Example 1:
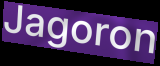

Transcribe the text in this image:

Jagoron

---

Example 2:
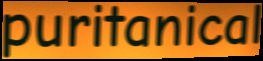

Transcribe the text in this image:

puritanical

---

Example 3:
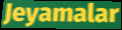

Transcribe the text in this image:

Jeyamalar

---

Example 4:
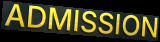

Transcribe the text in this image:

ADMISSION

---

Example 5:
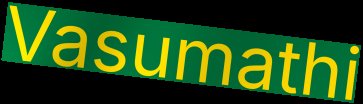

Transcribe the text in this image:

Vasumathi